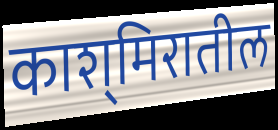
काश्मिरातील